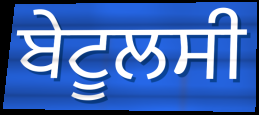
ਬੇਟੂਲਸੀ